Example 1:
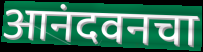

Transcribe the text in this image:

आनंदवनचा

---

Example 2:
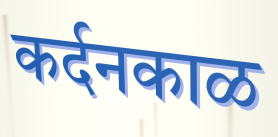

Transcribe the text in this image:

कर्दनकाळ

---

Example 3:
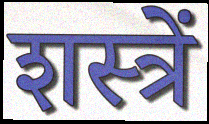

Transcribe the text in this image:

शस्त्रें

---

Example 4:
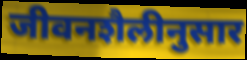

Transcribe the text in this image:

जीवनशैलीनुसार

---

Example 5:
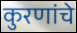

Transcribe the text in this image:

कुरणांचे